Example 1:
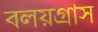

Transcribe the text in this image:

বলয়গ্রাস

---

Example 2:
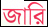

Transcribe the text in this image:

জারি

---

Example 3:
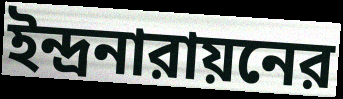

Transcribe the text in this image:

ইন্দ্রনারায়নের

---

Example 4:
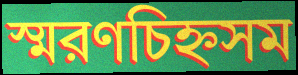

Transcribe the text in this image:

স্মরণচিহ্নসম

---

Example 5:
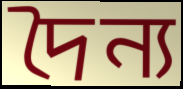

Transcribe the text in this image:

দৈন্য